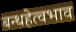
बन्धहेत्वभाव